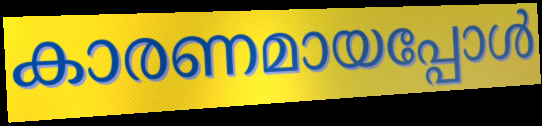
കാരണമായപ്പോൾ